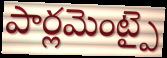
పార్లమెంట్పై